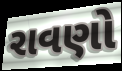
રાવણો